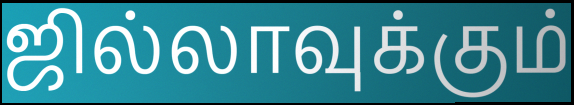
ஜில்லாவுக்கும்